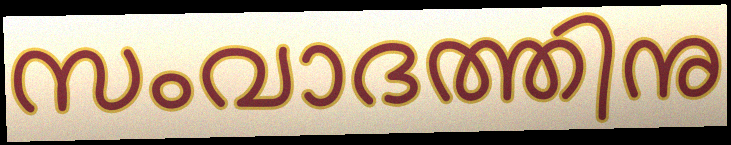
സംവാദത്തിനു